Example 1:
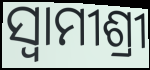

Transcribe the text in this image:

ସ୍ଵାମୀଶ୍ରୀ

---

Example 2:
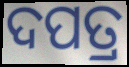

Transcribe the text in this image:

ଦପତ୍ର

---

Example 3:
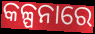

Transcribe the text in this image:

କଳ୍ପନାରେ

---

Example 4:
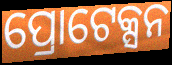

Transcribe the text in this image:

ପ୍ରୋଟେକ୍ସନ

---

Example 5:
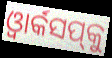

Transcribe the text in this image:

ଓ୍ୱାର୍କସପ୍‌କୁ